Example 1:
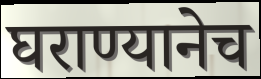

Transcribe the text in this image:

घराण्यानेच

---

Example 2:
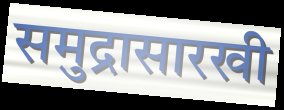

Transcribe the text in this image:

समुद्रासारखी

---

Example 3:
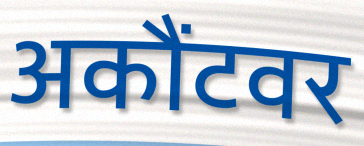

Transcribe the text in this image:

अकौंटवर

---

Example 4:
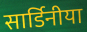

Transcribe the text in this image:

सार्डिनीया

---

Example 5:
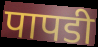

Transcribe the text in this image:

पापडी